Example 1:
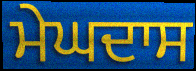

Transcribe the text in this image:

ਮੇਘਦਾਸ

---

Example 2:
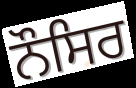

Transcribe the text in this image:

ਨੌਸਿਰ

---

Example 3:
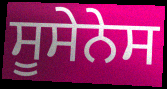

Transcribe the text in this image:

ਸੂਸੇਨੇਸ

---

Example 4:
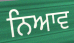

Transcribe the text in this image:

ਨਿਆਵ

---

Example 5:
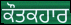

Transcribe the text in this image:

ਕੌਤਕਹਾਰ